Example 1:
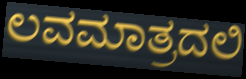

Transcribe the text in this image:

ಲವಮಾತ್ರದಲಿ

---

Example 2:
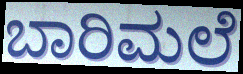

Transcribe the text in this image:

ಬಾರಿಮಲೆ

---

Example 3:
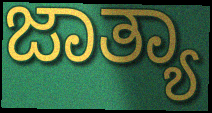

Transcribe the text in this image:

ಜಾತ್ಯಾ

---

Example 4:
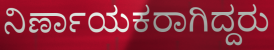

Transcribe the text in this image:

ನಿರ್ಣಾಯಕರಾಗಿದ್ದರು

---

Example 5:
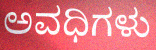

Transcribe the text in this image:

ಅವಧಿಗಳು